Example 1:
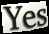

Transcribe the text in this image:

Yes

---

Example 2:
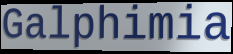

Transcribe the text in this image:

Galphimia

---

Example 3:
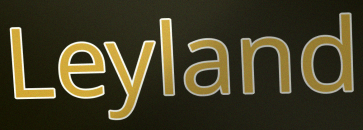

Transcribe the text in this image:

Leyland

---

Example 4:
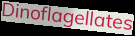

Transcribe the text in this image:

Dinoflagellates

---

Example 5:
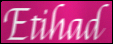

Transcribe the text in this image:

Etihad